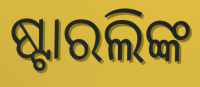
ଷ୍ଟାରଲିଙ୍କ